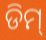
ଡିମ୍